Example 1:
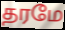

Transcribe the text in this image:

தரமே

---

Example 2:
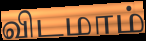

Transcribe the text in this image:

விடமாம்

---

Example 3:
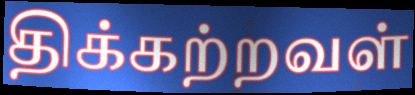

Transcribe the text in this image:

திக்கற்றவள்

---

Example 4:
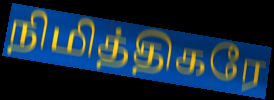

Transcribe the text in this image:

நிமித்திகரே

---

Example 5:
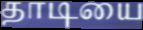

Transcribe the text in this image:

தாடியை